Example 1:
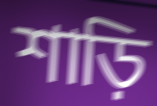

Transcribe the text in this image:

শাড়ি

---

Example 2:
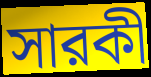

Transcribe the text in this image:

সারকী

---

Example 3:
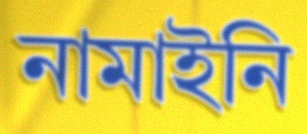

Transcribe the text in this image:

নামাইনি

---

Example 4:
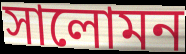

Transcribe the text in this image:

সালোমন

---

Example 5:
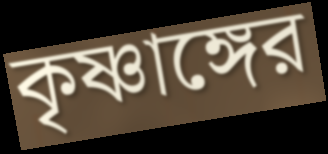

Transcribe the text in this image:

কৃষ্ণাঙ্গের